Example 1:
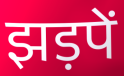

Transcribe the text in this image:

झड़पें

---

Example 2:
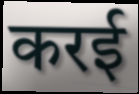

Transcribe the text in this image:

करई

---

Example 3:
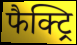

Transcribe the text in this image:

फैक्ट्रि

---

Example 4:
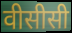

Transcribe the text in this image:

वीसीसी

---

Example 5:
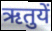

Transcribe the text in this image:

ऋतुयें